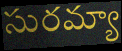
సురమ్యా